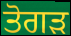
ਤੋਗੜ